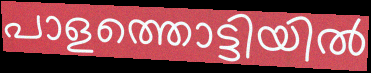
പാളത്തൊട്ടിയിൽ